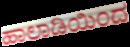
ಹಾಲಾಡಿಯಿಂದ